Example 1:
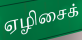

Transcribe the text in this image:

ஏழிசைக்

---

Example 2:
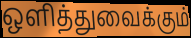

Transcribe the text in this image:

ஒளித்துவைக்கும்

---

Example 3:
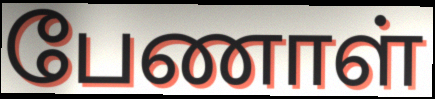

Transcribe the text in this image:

பேணாள்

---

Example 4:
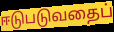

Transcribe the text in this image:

ஈடுபடுவதைப்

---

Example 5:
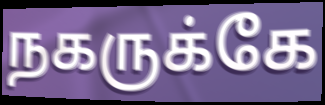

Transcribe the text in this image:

நகருக்கே